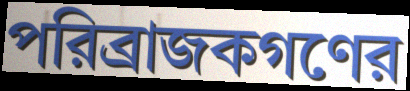
পরিব্রাজকগণের